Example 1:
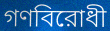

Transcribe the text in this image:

গণবিরোধী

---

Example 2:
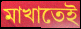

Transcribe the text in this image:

মাখাতেই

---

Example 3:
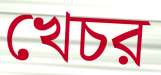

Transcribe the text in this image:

খেচর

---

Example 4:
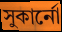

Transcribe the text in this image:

সুকার্নো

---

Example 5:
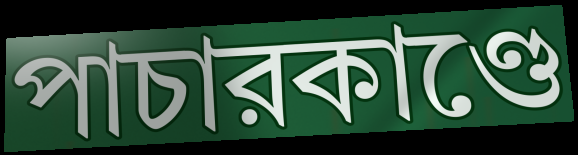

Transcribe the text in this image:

পাচারকাণ্ডে